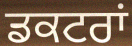
ਡਕਟਰਾਂ